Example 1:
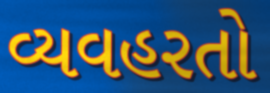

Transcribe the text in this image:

વ્યવહરતો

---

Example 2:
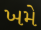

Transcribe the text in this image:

ખમે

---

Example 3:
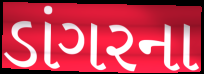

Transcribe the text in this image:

ડાંગરના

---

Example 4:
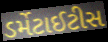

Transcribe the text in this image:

ડર્મેટાઈટીસ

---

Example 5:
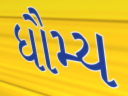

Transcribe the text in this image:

ધૌમ્ય